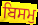
ਬਿਸਮੁ